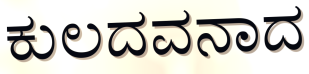
ಕುಲದವನಾದ